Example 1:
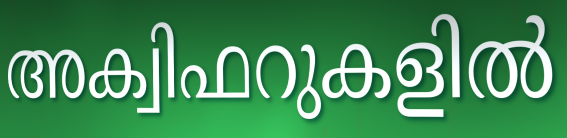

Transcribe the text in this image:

അക്വിഫറുകളിൽ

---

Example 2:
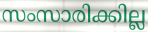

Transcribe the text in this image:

സംസാരിക്കില്ല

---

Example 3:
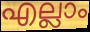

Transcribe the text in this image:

എല്ലാം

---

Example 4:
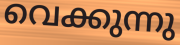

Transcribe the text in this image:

വെക്കുന്നു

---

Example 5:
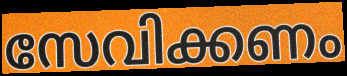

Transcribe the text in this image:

സേവിക്കണം